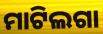
ମାଟିଲଗା